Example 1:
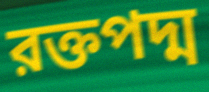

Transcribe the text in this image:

রক্তপদ্ম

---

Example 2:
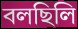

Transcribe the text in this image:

বলছিলি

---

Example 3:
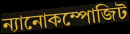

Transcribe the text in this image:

ন্যানোকম্পোজিট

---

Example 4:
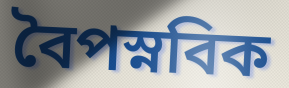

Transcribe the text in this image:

বৈপস্নবিক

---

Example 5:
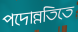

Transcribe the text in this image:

পদোন্নতিতে